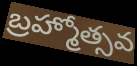
బ్రహ్మోత్సవ